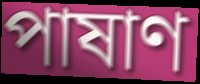
পাষাণ